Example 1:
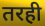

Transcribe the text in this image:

तरही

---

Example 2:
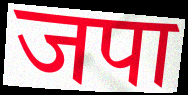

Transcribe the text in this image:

जपा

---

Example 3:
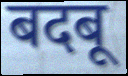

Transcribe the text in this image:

बदबू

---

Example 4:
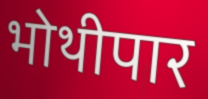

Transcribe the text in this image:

भोथीपार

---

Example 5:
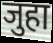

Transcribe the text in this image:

जुहा